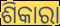
ଶିକାରା